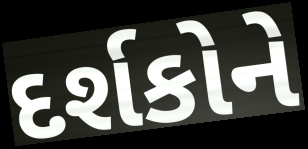
દર્શકોને